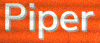
Piper